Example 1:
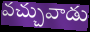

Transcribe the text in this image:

వచ్చువాడు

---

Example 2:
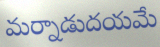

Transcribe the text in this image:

మర్నాడుదయమే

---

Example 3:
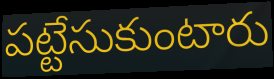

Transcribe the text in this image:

పట్టేసుకుంటారు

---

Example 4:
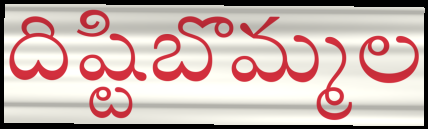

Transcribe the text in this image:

దిష్టిబొమ్మల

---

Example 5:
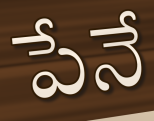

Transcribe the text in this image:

పేనే